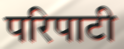
परिपाटी